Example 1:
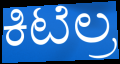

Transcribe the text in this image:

ಕಿಟೆಲ್ರ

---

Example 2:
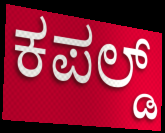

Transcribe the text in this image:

ಕಪಲ್ಡ್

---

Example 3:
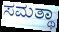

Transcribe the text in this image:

ಸಮತ್ಥಾ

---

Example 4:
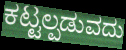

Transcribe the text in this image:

ಕಟ್ಟಲ್ಪಡುವದು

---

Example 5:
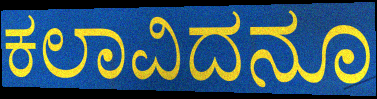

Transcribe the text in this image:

ಕಲಾವಿದನೂ